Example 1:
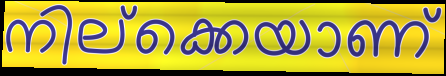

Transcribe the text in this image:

നില്ക്കെയാണ്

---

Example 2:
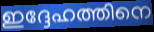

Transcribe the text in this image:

ഇദ്ദേഹത്തിനെ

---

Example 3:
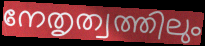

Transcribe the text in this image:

നേതൃത്വത്തിലും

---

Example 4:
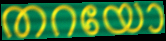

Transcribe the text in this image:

തറയോ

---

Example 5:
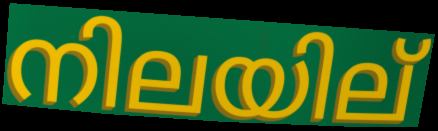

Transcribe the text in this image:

നിലയില്